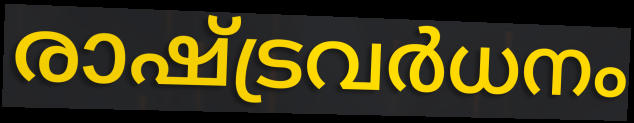
രാഷ്ട്രവർധനം